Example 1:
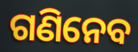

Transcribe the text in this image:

ଗଣିନେବ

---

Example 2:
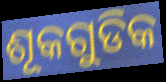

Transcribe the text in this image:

ଶୂକଗୁଡିକ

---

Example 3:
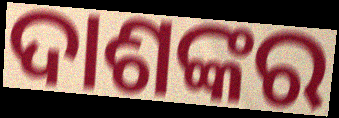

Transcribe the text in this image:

ଦାଶଙ୍କର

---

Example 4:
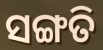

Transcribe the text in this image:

ସଙ୍ଗତି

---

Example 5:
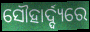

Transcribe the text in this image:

ସୌହାର୍ଦ୍ଦ୍ୟରେ